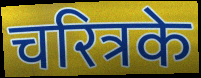
चरित्रके